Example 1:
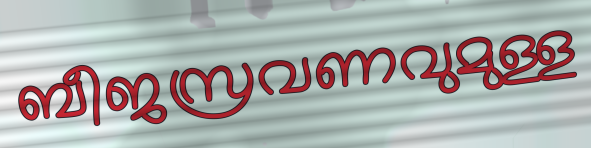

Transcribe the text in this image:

ബീജസ്രവണവുമുള്ള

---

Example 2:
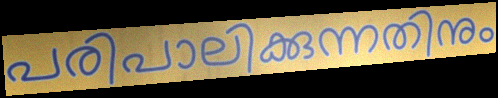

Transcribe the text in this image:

പരിപാലിക്കുന്നതിനും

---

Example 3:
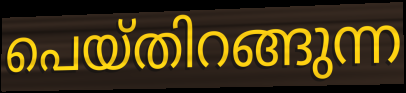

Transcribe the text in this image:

പെയ്തിറങ്ങുന്ന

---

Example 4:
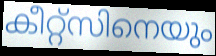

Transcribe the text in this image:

കീറ്റ്സിനെയും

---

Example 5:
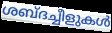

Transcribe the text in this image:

ശബ്ദച്ചീളുകൾ